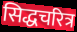
सिद्धचरित्र